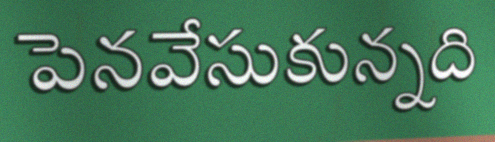
పెనవేసుకున్నది